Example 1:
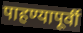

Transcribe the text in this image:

पाहण्यापूर्वी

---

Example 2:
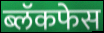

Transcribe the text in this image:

ब्लॅकफेस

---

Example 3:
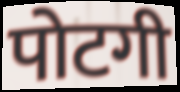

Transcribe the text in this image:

पोटगी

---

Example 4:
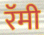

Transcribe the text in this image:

रॅमी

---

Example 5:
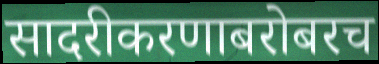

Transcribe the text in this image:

सादरीकरणाबरोबरच